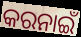
କରନାଇଁ